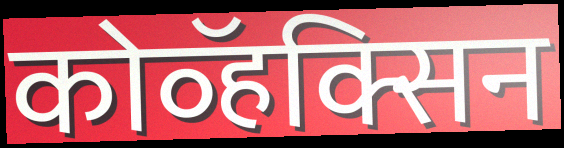
कोव्हॅक्सिन